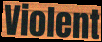
Violent